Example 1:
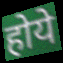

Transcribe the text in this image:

होये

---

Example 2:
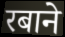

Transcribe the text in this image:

रबाने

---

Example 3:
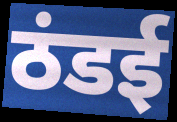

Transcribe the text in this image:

ठंडई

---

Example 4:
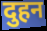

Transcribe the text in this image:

दुहन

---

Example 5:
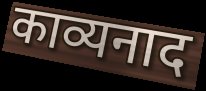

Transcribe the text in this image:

काव्यनाद